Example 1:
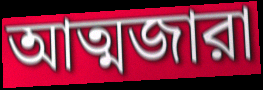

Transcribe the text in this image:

আত্মজারা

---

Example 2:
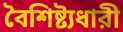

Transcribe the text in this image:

বৈশিষ্ট্যধারী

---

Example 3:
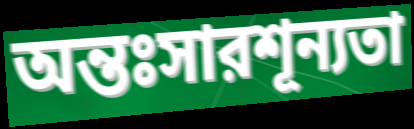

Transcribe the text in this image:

অন্তঃসারশূন্যতা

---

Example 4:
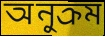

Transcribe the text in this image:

অনুক্রম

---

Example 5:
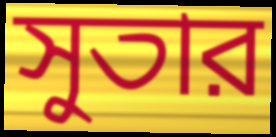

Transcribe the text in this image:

সুতার